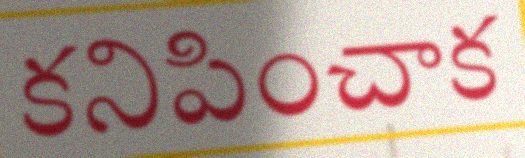
కనిపించాక